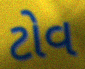
ટોવ